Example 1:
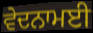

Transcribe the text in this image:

ਵੇਦਨਾਮਈ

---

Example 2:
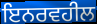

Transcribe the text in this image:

ਇਨਰਵਹੀਲ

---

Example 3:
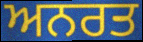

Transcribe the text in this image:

ਅਨਰਤ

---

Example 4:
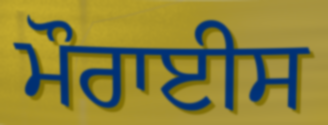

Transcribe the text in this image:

ਮੌਰਾਈਸ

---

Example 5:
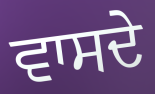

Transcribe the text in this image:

ਵਾਸਦੇ